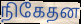
நிகேதன